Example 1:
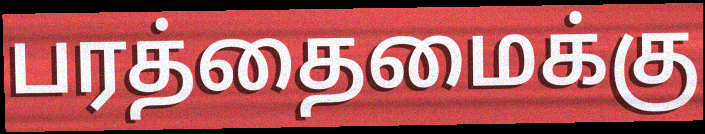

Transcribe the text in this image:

பரத்தைமைக்கு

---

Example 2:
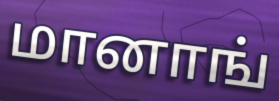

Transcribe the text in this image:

மானாங்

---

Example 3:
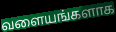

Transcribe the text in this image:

வளையங்களாக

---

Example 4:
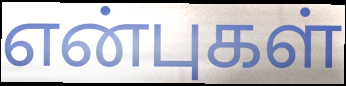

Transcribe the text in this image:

என்புகள்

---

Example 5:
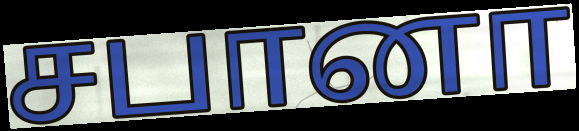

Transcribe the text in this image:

சபானா